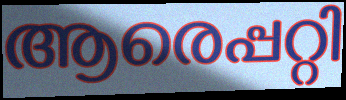
ആരെപ്പറ്റി